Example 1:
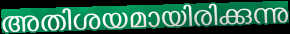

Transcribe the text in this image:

അതിശയമായിരിക്കുന്നു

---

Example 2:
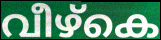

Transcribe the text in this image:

വീഴ്കെ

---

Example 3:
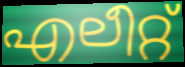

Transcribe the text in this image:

എലീറ്റ്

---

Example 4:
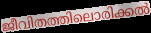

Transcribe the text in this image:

ജീവിതത്തിലൊരിക്കൽ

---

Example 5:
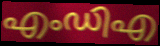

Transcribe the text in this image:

എംഡിഎ